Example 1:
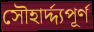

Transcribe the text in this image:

সৌহার্দ্দ্যপূর্ণ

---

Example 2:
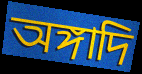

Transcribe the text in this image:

অঙ্গাদি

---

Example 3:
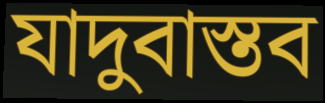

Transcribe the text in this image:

যাদুবাস্তব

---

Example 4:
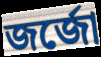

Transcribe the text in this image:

জর্জো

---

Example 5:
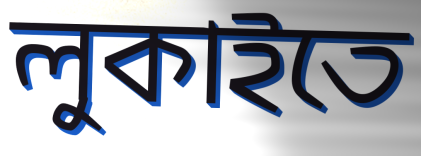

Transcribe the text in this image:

লুকাইতে